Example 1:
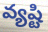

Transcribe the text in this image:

వ్యష్టి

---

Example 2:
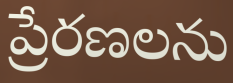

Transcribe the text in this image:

ప్రేరణలను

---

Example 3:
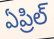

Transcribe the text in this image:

ఏప్రిల్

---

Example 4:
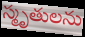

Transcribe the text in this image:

స్మృతులను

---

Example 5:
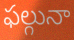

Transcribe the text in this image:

ఫల్గునా